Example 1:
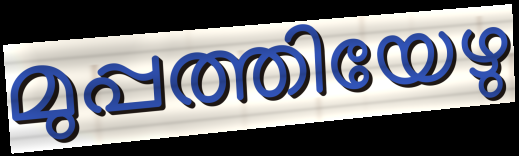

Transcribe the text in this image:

മുപ്പത്തിയേഴു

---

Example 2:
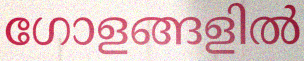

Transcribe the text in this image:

ഗോളങ്ങളിൽ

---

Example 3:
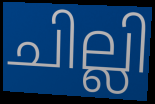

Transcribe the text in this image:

ചില്ലി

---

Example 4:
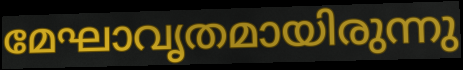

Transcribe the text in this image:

മേഘാവൃതമായിരുന്നു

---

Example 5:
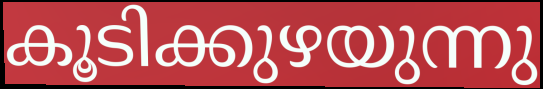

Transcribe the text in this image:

കൂടിക്കുഴയുന്നു